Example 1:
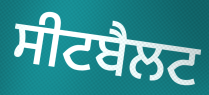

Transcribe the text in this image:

ਸੀਟਬੈਲਟ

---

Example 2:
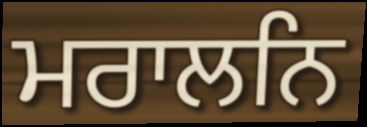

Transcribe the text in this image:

ਮਰਾਲਨਿ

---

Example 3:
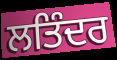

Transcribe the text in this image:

ਲਤਿੰਦਰ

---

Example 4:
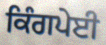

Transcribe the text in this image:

ਕਿੰਗਪੇਈ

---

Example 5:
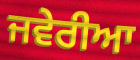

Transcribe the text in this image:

ਜਵੇਰੀਆ